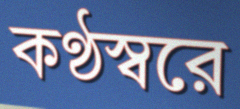
কণ্ঠস্বরে